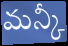
మన్కీ